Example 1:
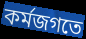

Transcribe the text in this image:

কর্মজগতে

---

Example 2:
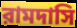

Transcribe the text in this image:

রামদাসি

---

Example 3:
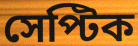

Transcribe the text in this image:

সেপ্টিক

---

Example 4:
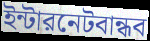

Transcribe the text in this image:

ইন্টারনেটবান্ধব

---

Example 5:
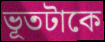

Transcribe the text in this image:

ভূতটাকে